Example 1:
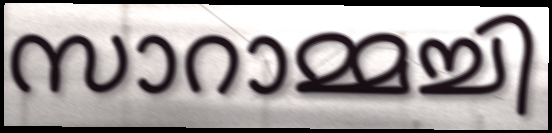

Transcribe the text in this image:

സാറാമ്മച്ചി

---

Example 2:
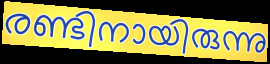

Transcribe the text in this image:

രണ്ടിനായിരുന്നു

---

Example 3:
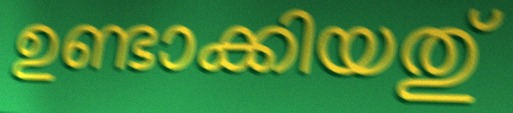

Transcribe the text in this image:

ഉണ്ടാക്കിയതു്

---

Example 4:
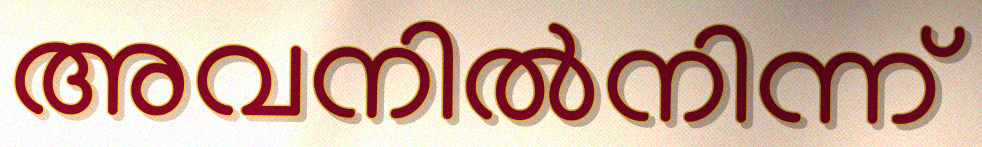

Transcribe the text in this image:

അവനിൽനിന്ന്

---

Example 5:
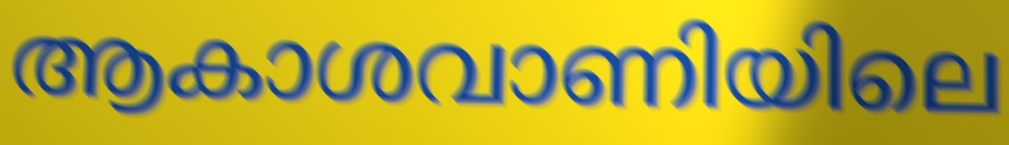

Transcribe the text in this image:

ആകാശവാണിയിലെ